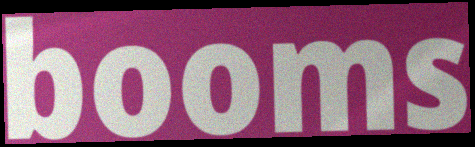
booms